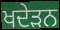
ਖਦੇੜਨ